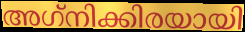
അഗ്‌നിക്കിരയായി